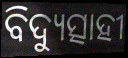
ବିଦ୍ୟୁତ୍ସାହୀ